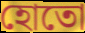
হোতো